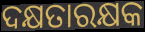
ଦକ୍ଷତାରକ୍ଷକ